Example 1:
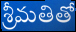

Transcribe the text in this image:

శ్రీమతితో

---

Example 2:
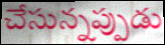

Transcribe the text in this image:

చేసున్నప్పుడు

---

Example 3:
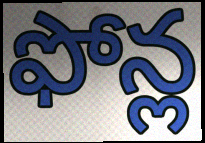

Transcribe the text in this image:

ఫోన్ల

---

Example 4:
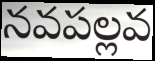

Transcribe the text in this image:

నవపల్లవ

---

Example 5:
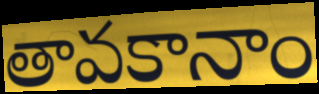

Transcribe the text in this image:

తావకానాం